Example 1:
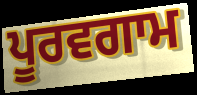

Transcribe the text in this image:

ਪੂਰਵਗਾਮ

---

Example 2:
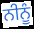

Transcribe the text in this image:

ਨੀਨੂੰ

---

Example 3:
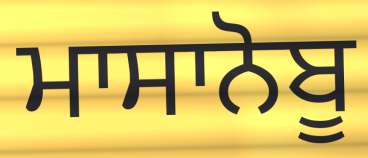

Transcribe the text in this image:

ਮਾਸਾਨੋਬੂ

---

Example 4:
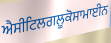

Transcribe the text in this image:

ਐਸੀਟਿਲਗਲੂਕੋਸਾਮਾਈਨ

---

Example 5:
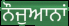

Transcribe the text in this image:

ਨੌਜੁਆਨਾਂ